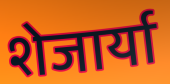
शेजार्या